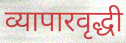
व्यापारवृद्धी